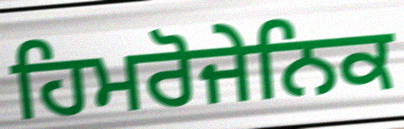
ਹਿਮਰੋਜੇਨਿਕ